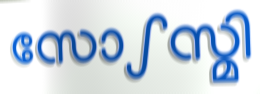
സോഽസ്മി